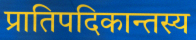
प्रातिपदिकान्तस्य